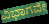
ವಿಭಾಗವೇ